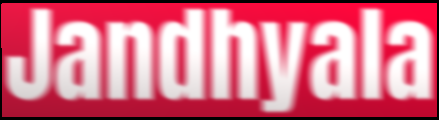
Jandhyala